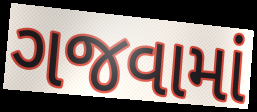
ગજવામાં